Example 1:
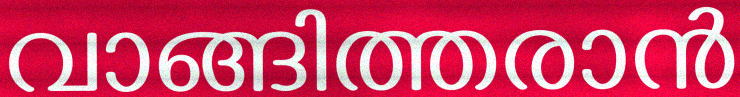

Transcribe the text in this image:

വാങ്ങിത്തരാൻ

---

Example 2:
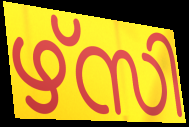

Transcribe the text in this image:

ഴ്സി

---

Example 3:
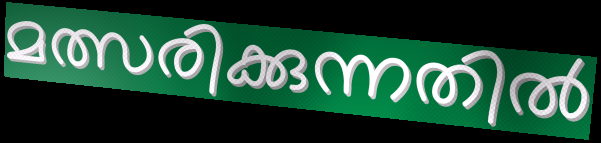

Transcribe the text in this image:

മത്സരിക്കുന്നതിൽ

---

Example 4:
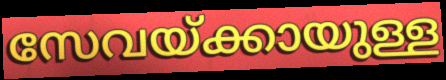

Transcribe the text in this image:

സേവയ്ക്കായുള്ള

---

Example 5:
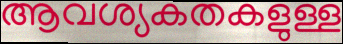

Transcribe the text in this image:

ആവശ്യകതകളുള്ള